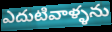
ఎదుటివాళ్ళను